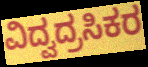
ವಿದ್ವದ್ರಸಿಕರ